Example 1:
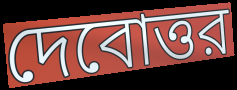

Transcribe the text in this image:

দেবোত্তর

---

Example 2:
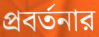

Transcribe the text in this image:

প্রবর্তনার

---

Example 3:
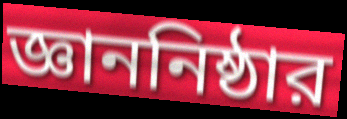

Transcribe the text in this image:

জ্ঞাননিষ্ঠার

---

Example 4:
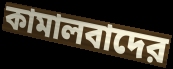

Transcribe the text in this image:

কামালবাদের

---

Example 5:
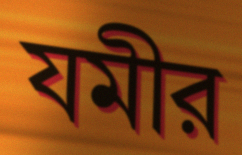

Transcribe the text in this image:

যমীর